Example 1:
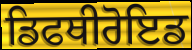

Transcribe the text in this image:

ਡਿਫਥੀਰੋਇਡ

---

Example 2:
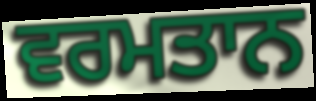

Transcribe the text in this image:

ਵਰਮਤਾਨ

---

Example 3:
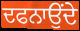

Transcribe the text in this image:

ਦਫਨਾਉਂਦੇ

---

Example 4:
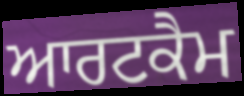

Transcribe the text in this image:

ਆਰਟਕੈਮ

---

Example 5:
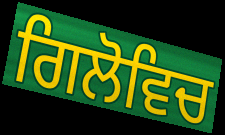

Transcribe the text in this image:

ਗਿਲੋਵਿਚ